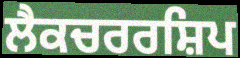
ਲੈਕਚਰਰਸ਼ਿਪ